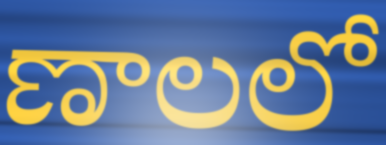
ణాలలో